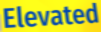
Elevated